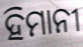
ହିମାନୀ